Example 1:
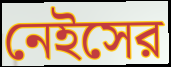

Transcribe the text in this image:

নেইসের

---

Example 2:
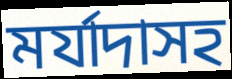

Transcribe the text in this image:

মর্যাদাসহ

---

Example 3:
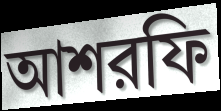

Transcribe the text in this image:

আশরফি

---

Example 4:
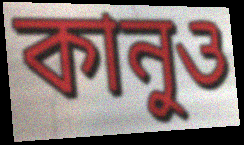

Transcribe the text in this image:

কানুও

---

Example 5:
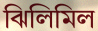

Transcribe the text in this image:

ঝিলিমিল